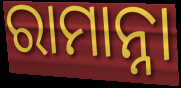
ରାମାନ୍ନା